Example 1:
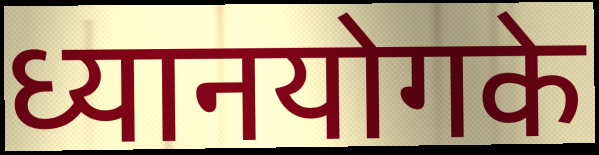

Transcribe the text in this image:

ध्यानयोगके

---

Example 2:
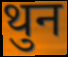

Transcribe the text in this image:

थुन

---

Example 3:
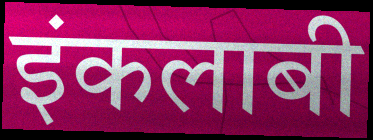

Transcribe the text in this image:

इंकलाबी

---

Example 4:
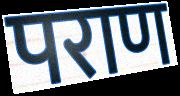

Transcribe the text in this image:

पराण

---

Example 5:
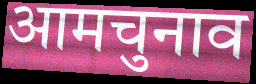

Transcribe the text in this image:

आमचुनाव